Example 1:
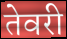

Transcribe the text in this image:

तेवरी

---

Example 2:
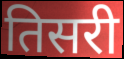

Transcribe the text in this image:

तिसरी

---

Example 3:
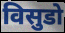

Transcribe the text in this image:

विसुडो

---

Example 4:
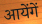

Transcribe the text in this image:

आयेंगें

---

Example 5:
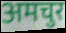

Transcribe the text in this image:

अमचुर